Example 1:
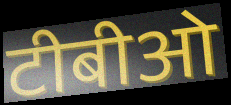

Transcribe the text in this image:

टीबीओ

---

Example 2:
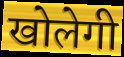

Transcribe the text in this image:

खोलेगी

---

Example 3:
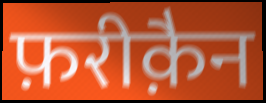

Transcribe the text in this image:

फ़रीक़ैन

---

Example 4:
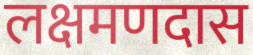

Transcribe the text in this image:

लक्षमणदास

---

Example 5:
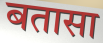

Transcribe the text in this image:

बतासा